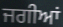
ਜਗੀਆਂ